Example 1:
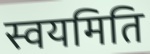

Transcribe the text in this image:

स्वयमिति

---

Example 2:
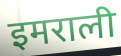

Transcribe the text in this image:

इमराली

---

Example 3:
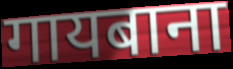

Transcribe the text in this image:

गायबाना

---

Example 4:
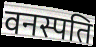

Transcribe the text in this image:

वनस्‍पति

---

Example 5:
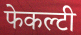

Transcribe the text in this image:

फेकल्टी